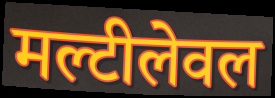
मल्टीलेवल